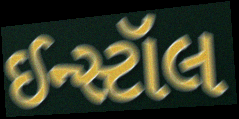
ઈન્સ્ટૉલ